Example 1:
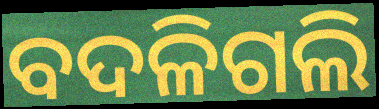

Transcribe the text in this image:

ବଦଳିଗଲି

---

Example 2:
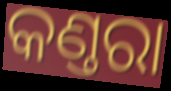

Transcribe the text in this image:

କଣ୍ତରା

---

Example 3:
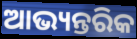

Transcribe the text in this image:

ଆଭ୍ୟନ୍ତରିକ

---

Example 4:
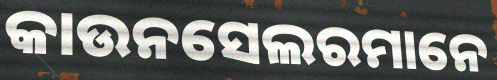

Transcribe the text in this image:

କାଉନସେଲରମାନେ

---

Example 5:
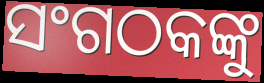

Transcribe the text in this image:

ସଂଗଠକଙ୍କୁ